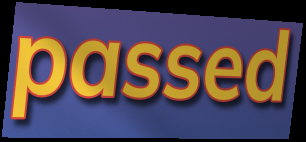
passed